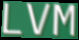
LVM